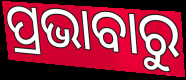
ପ୍ରଭାବାରୁ